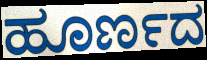
ಹೂರ್ಣದ